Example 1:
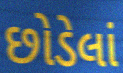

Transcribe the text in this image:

છોડેલાં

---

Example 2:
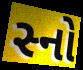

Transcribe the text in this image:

સ્નો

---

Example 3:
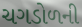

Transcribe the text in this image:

ચગડોળની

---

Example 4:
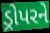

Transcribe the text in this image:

ડ્રોપરને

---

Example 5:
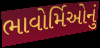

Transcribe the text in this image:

ભાવોર્મિઓનું